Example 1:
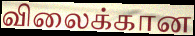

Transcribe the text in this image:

விலைக்கான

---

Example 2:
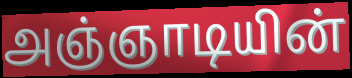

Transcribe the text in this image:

அஞ்ஞாடியின்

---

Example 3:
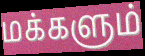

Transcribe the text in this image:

மக்களும்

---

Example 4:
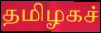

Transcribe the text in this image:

தமிழகச்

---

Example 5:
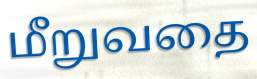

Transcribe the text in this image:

மீறுவதை